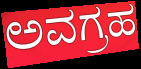
ಅವಗ್ರಹ